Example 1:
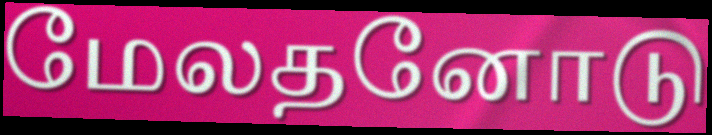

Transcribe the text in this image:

மேலதனோடு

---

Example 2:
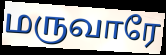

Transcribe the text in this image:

மருவாரே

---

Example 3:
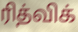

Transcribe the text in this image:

ரித்விக்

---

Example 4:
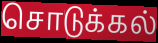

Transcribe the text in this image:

சொடுக்கல்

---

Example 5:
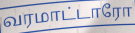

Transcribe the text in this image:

வரமாட்டாரோ